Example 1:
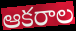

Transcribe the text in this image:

ఆకరాల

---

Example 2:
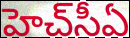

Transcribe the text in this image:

హెచ్‌సీఏ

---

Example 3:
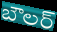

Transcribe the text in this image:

బౌలర్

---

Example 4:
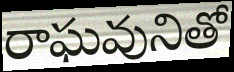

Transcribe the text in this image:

రాఘవునితో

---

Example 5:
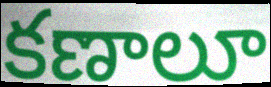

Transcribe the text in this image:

కణాలూ